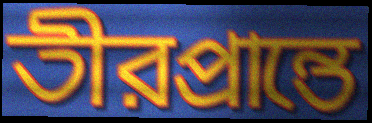
তীরপ্রান্তে